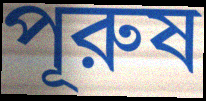
পূরুষ